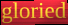
gloried